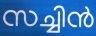
സച്ചിൻ